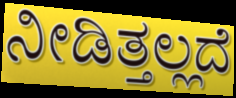
ನೀಡಿತ್ತಲ್ಲದೆ